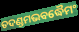
ତଦଣ୍ଡମଭବଦ୍ଧୈମଂ